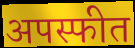
अपस्फीत